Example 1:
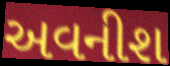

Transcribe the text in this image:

અવનીશ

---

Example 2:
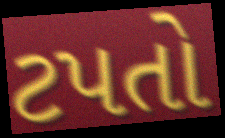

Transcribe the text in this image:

ટપતો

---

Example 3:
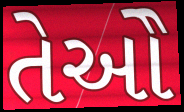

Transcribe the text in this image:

તેઓે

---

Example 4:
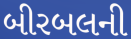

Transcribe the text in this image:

બીરબલની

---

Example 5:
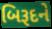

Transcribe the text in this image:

બિરૂદને